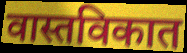
वास्तविकात